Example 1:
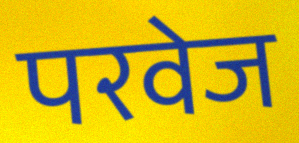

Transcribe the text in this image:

परवेज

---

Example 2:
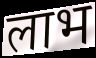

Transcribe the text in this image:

लाभ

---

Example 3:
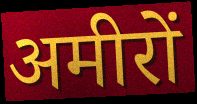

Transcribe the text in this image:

अमीरों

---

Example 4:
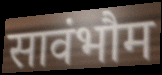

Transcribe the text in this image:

सावंभौम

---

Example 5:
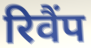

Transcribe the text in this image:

रिवैंप